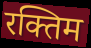
रक्तिम